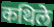
कथिले